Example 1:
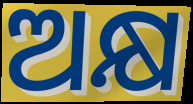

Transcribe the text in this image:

ଅକ୍ଷ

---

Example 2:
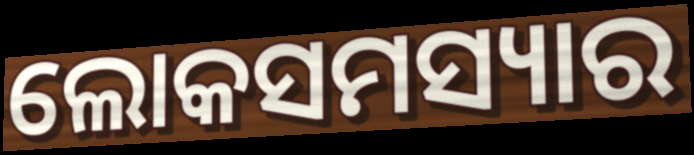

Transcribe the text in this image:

ଲୋକସମସ୍ୟାର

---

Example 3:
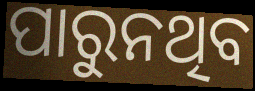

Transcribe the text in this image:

ପାରୁନଥିବ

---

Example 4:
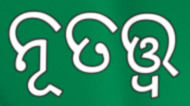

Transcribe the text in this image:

ନୂତତ୍ତ୍ଵ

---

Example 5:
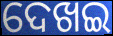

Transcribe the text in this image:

ଦେଖଇ